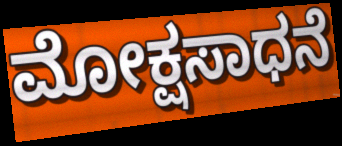
ಮೋಕ್ಷಸಾಧನೆ